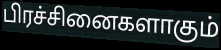
பிரச்சினைகளாகும்